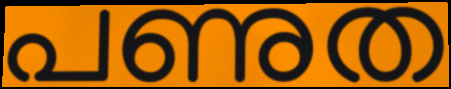
പണുത